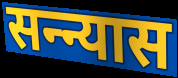
सन्न्यास